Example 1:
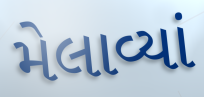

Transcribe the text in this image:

મેલાવ્યાં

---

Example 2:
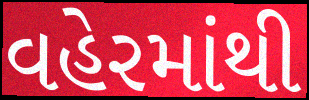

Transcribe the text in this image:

વહેરમાંથી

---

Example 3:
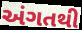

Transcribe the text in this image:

અંગતથી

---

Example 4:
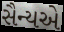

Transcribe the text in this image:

સૈન્યએ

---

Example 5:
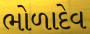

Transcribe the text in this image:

ભોળાદેવ